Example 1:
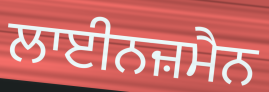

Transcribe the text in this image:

ਲਾਈਨਜ਼ਮੈਨ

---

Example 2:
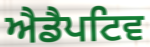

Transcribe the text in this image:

ਐਡੈਪਟਿਵ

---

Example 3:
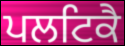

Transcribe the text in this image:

ਪਲਟਿਕੈ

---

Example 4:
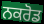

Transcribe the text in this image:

ਨਕਰੋਡ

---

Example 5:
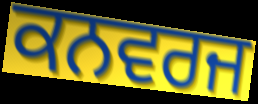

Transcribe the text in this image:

ਕਨਵਰਜ